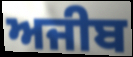
ਅਜੀਬ